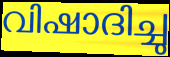
വിഷാദിച്ചു